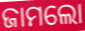
ଜାମଲୋ